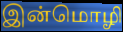
இன்மொழி